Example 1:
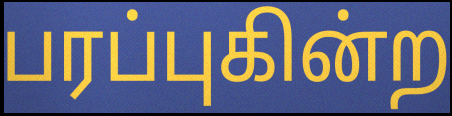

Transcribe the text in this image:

பரப்புகின்ற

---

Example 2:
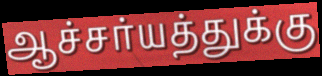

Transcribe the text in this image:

ஆச்சர்யத்துக்கு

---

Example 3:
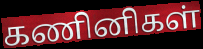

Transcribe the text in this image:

கணினிகள்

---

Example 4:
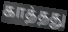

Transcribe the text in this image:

காத்தது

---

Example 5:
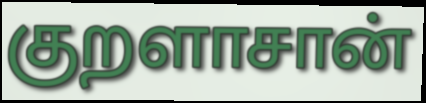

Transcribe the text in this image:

குறளாசான்